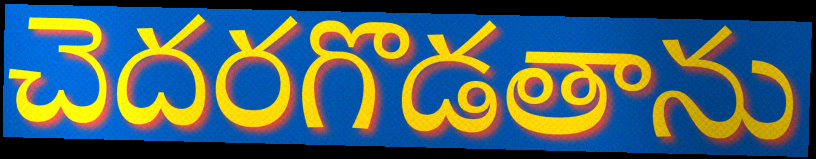
చెదరగొడతాను